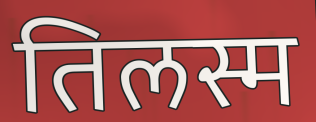
तिलस्म